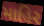
માહિર